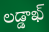
లడ్డాఖ్